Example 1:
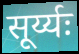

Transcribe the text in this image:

सूर्य्यः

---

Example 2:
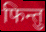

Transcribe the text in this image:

फिन्तु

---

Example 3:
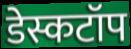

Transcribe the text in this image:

डेस्‍कटॉप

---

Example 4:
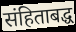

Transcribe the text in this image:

संहिताबद्ध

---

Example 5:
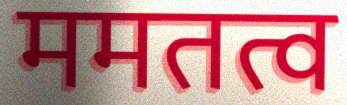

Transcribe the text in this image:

ममतत्व